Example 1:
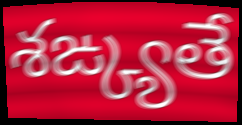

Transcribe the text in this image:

శఙ్క్యతే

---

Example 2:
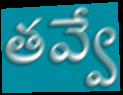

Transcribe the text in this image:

తవ్వే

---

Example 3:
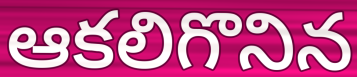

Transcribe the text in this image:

ఆకలిగొనిన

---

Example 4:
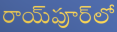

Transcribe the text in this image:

రాయ్‌పూర్‌లో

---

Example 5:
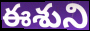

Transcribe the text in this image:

ఈశుని